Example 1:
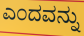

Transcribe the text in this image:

ಎಂದವನ್ನು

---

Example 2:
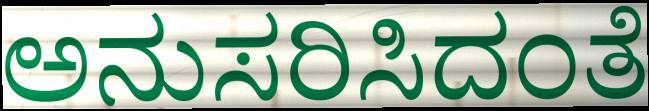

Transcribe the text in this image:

ಅನುಸರಿಸಿದಂತೆ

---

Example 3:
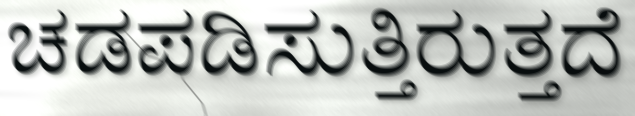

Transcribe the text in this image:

ಚಡಪಡಿಸುತ್ತಿರುತ್ತದೆ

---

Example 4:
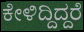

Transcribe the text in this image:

ಕೇಳಿದ್ದಿದ್ದರೆ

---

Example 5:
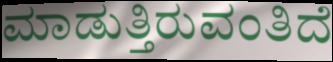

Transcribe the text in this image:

ಮಾಡುತ್ತಿರುವಂತಿದೆ